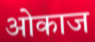
ओकाज